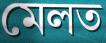
মেলত